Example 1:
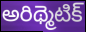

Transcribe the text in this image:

అరిథ్మెటిక్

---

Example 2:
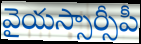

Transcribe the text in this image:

వైయస్సార్సీపీ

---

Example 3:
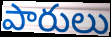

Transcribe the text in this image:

పారులు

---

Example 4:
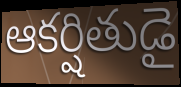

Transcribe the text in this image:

ఆకర్షితుడై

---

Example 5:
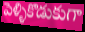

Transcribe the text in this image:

పెళ్ళికొడుకుగా